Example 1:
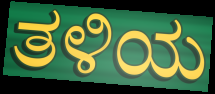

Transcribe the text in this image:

ತಳಿಯ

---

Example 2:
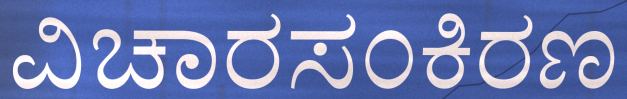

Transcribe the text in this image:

ವಿಚಾರಸಂಕಿರಣ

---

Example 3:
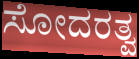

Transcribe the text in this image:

ಸೋದರತ್ವ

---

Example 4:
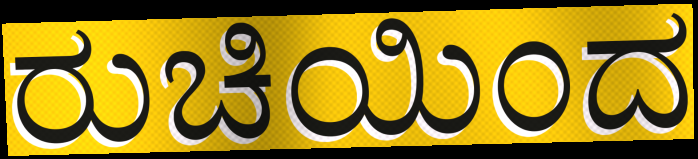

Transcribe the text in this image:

ರುಚಿಯಿಂದ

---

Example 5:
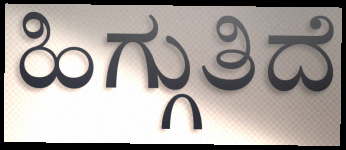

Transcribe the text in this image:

ಹಿಗ್ಗುತಿದೆ